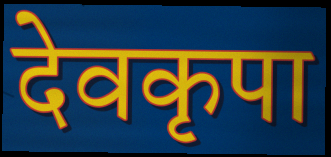
देवकृपा